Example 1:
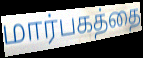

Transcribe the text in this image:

மார்பகத்தை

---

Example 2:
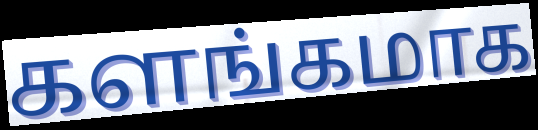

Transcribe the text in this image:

களங்கமாக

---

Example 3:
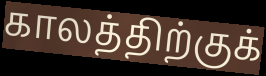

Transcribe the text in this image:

காலத்திற்குக்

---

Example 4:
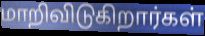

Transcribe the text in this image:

மாறிவிடுகிறார்கள்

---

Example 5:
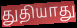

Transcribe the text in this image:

துதியாது